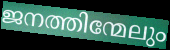
ജനത്തിന്മേലും